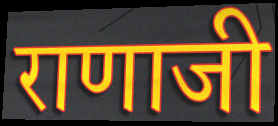
राणाजी